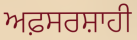
ਅਫ਼ਸਰਸ਼ਾਹੀ